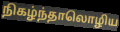
நிகழ்ந்தாலொழிய